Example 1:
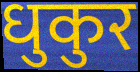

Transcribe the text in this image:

धुकुर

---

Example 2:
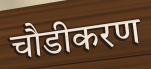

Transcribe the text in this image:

चौडीकरण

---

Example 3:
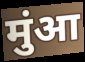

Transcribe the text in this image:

मुंआ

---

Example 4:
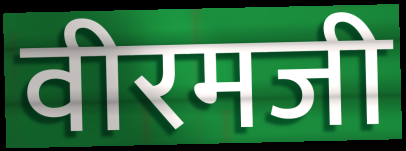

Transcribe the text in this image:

वीरमजी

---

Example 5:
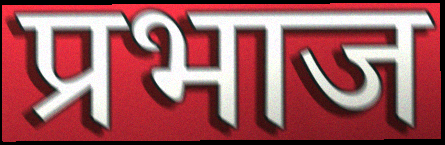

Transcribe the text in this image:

प्रभाज